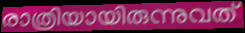
രാത്രിയായിരുന്നുവത്